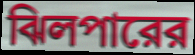
ঝিলপারের